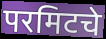
परमिटचे